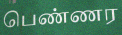
பெண்ணர